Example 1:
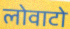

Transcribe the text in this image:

लोवाटो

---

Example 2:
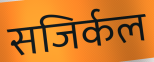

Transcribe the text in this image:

सजिर्कल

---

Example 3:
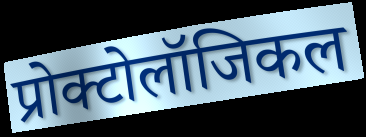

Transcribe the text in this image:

प्रोक्टोलॉजिकल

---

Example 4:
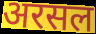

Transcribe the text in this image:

अरसल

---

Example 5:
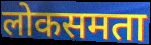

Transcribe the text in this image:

लोकसमता